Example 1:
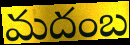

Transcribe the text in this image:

మదంబ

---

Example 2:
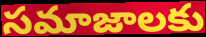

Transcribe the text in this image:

సమాజాలకు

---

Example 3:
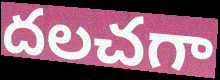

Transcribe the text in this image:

దలచగా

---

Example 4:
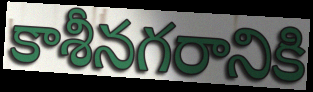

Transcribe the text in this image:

కాశీనగరానికి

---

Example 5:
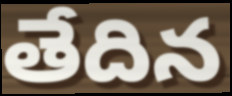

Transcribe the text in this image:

తేదిన